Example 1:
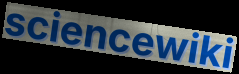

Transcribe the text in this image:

sciencewiki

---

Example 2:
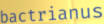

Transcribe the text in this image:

bactrianus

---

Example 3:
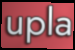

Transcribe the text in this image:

upla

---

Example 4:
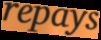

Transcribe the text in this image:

repays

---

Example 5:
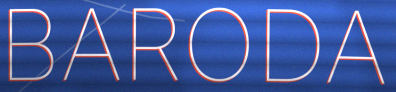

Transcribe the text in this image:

BARODA